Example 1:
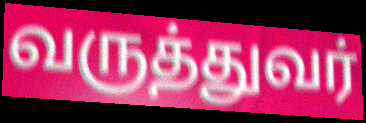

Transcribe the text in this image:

வருத்துவர்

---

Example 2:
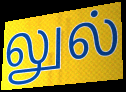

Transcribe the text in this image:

லுல்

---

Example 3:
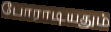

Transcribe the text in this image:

போராடியதும்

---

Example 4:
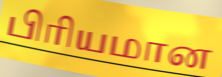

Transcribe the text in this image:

பிரியமான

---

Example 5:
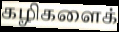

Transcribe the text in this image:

கழிகளைக்